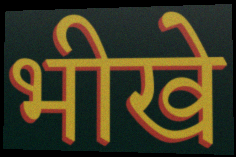
भीखे